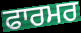
ਫਾਰਮਰ